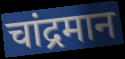
चांद्रमान